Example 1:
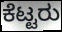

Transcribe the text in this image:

ಕೆಟ್ಟರು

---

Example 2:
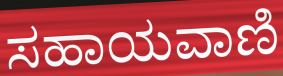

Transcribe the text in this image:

ಸಹಾಯವಾಣಿ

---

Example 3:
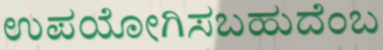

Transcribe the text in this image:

ಉಪಯೋಗಿಸಬಹುದೆಂಬ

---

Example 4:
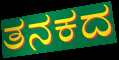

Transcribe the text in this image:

ತನಕದ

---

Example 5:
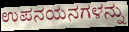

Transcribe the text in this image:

ಉಪನಯನಗಳನ್ನು